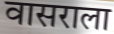
वासराला